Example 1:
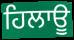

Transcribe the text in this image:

ਹਿਲਾਊ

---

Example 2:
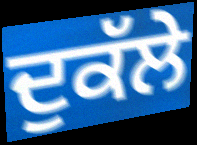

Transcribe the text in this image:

ਦੁਕੱਲੇ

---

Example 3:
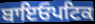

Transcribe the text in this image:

ਬਾਇਓਪਟਿਕ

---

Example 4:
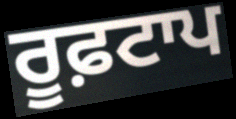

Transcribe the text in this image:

ਰੂਫ਼ਟਾਪ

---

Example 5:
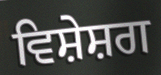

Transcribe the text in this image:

ਵਿਸ਼ੇਸ਼ਗ